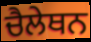
ਚੈਲੇਥਨ